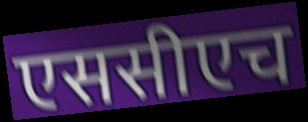
एससीएच